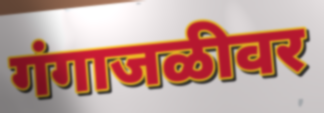
गंगाजळीवर